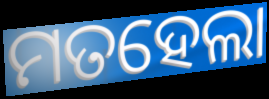
ମତହେଲା